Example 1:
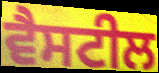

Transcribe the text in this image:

ਵੈਸਟੀਲ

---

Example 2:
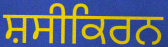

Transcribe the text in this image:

ਸ਼ਸੀਕਿਰਨ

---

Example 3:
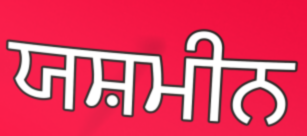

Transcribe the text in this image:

ਯਸ਼ਮੀਨ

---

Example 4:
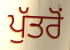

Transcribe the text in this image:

ਪੁੱਤਰੋਂ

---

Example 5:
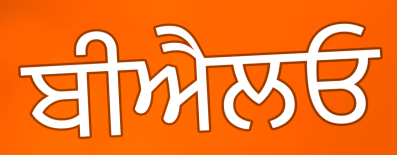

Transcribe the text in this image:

ਬੀਐਲਓ